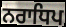
ਨਰਾਧਿਪ